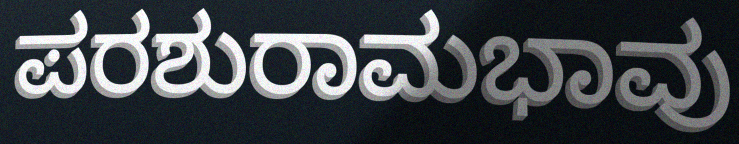
ಪರಶುರಾಮಭಾವು